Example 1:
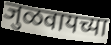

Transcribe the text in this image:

जुळवायच्या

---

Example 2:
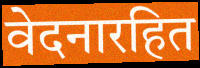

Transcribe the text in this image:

वेदनारहित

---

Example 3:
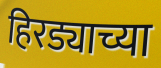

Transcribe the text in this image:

हिरड्याच्या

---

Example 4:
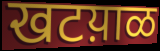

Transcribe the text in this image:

खटय़ाळ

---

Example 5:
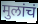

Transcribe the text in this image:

मुलांचं